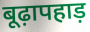
बूढ़ापहाड़